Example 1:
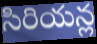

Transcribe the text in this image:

సిరియన్ల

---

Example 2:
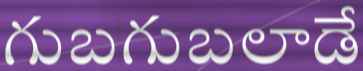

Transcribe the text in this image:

గుబగుబలాడే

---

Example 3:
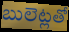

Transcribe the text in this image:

బులెట్లతో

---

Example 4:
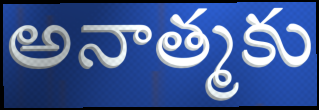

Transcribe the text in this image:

అనాత్మకు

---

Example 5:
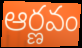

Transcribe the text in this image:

ఆర్ణవం